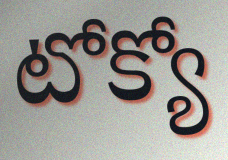
టోక్యో